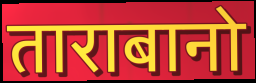
ताराबानो